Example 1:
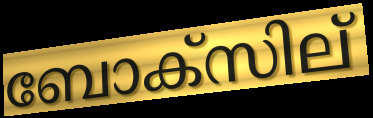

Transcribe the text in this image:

ബോക്സില്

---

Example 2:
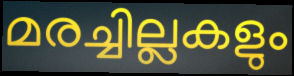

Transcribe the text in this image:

മരച്ചില്ലകളും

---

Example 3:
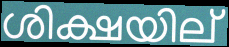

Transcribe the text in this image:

ശിക്ഷയില്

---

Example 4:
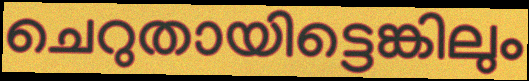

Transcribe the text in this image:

ചെറുതായിട്ടെങ്കിലും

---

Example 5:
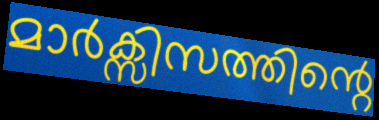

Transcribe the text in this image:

മാർക്സിസത്തിന്റെ